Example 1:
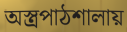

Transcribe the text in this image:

অস্ত্রপাঠশালায়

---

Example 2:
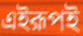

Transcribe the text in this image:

এইরূপই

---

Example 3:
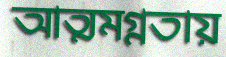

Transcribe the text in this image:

আত্মমগ্নতায়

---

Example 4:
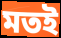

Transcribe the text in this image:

মতই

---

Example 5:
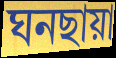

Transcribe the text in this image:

ঘনছায়া